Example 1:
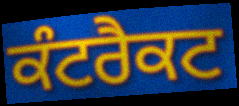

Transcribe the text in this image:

ਕੰਟਰੈਕਟ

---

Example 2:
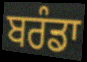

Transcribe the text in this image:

ਬਰੰਡਾ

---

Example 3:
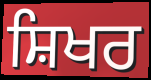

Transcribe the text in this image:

ਸ਼ਿਖਰ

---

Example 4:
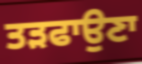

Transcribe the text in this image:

ਤੜਫਾਉਣਾ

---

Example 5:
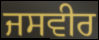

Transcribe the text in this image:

ਜਸਵੀਰ